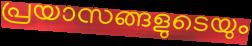
പ്രയാസങ്ങളുടെയും